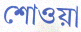
শোওয়া